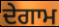
ਦੇਗਾਮ